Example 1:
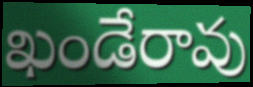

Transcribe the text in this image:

ఖండేరావు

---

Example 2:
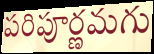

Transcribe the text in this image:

పరిపూర్ణమగు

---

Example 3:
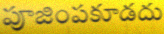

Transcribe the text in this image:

పూజింపకూడదు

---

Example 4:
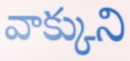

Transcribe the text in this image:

వాక్కుని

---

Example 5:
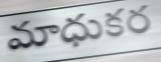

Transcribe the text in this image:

మాధుకర